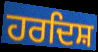
ਹਰਦਿਸ਼